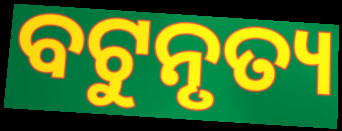
ବଟୁନୃତ୍ୟ